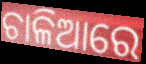
ଚାଳିଆରେ